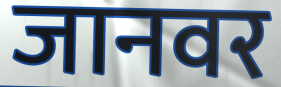
जानवर